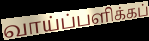
வாய்ப்பளிக்கப்